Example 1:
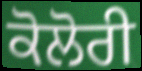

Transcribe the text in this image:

ਕੋਲੋਰੀ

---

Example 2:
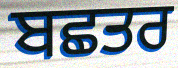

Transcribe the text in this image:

ਬਛਤਰ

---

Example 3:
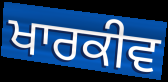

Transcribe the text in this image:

ਖਾਰਕੀਵ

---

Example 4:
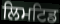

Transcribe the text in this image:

ਲਿਮਟਿਡ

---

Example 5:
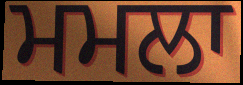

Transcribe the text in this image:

ਮਮਲਾ